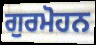
ਗੁਰਮੋਹਨ